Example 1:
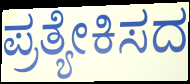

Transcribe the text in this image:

ಪ್ರತ್ಯೇಕಿಸದ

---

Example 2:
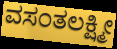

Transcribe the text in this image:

ವಸಂತಲಕ್ಷ್ಮೀ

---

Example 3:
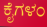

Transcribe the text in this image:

ಕೈಗಳಂ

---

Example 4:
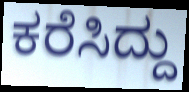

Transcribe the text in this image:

ಕರೆಸಿದ್ದು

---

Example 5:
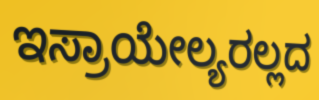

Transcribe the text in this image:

ಇಸ್ರಾಯೇಲ್ಯರಲ್ಲದ